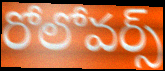
రోలోవర్స్